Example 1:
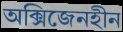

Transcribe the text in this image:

অক্সিজেনহীন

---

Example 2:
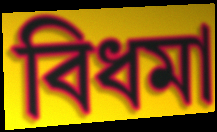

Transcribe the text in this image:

বিধমা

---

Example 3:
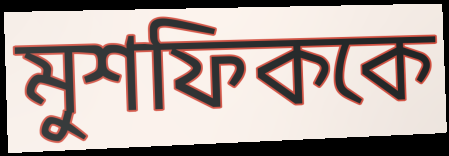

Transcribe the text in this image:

মুশফিককে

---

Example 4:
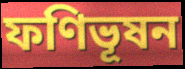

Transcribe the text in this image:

ফণিভূষন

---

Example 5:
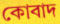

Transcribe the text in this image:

কোবাদ